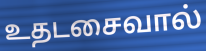
உதடசைவால்